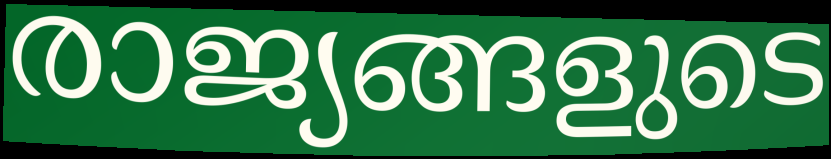
രാജ്യങ്ങളുടെ